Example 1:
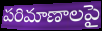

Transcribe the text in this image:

పరిమాణాలపై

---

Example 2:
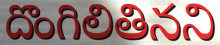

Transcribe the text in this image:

దొంగిలితినని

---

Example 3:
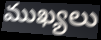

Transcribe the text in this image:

ముఖ్యలు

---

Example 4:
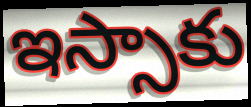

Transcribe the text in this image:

ఇస్సాకు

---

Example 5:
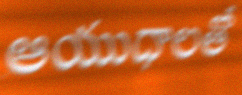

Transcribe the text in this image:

ఆయుధాలతో